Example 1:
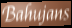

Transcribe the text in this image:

Bahujans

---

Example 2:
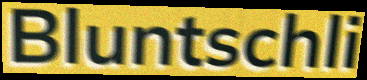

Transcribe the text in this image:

Bluntschli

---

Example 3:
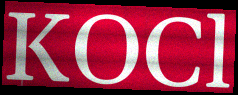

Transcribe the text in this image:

KOCl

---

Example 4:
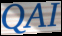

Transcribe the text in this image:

QAI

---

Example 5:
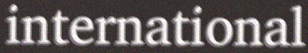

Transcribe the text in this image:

international